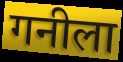
गनीला